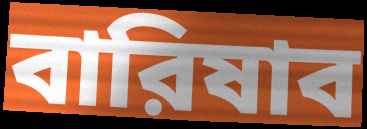
বারিষাব